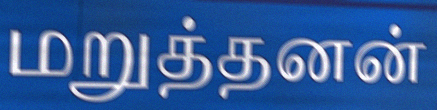
மறுத்தனன்